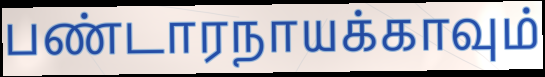
பண்டாரநாயக்காவும்